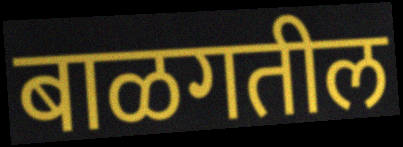
बाळगतील